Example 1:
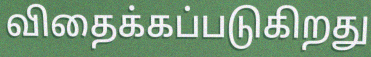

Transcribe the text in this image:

விதைக்கப்படுகிறது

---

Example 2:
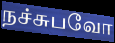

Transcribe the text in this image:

நச்சுபவோ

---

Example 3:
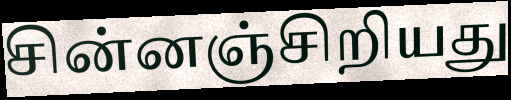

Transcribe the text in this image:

சின்னஞ்சிறியது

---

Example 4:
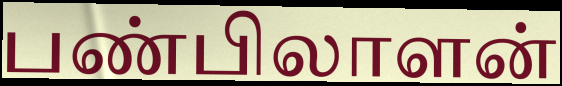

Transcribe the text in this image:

பண்பிலாளன்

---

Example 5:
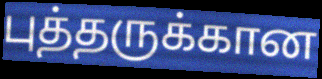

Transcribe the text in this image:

புத்தருக்கான